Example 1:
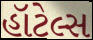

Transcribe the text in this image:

હૉટેલ્સ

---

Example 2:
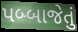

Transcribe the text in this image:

પબ્બાજેતું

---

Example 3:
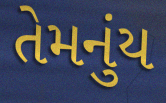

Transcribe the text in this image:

તેમનુંય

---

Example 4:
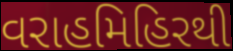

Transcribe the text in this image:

વરાહમિહિરથી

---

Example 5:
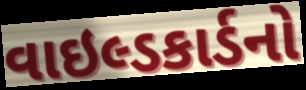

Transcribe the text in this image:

વાઇલ્ડકાર્ડનો